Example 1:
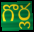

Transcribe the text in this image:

గొర్ల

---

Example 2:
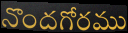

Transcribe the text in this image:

నొందగోరము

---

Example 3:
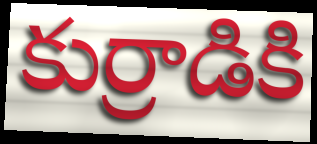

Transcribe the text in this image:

కుర్రాడికి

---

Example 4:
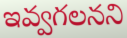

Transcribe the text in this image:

ఇవ్వగలనని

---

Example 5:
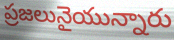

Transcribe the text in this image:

ప్రజలునైయున్నారు